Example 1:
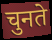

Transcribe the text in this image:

चुनते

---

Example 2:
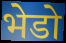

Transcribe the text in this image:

भेडो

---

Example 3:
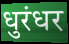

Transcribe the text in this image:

धुरंधर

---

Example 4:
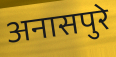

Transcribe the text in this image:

अनासपुरे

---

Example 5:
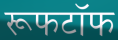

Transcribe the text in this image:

रूफटॉफ